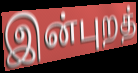
இன்புறத்